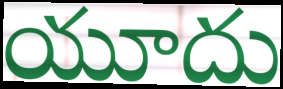
యూదు